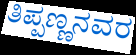
ತಿಪ್ಪಣ್ಣನವರ